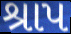
શ્રાપ